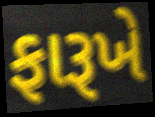
ફારૂખે